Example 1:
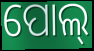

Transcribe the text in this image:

ପୋଲ୍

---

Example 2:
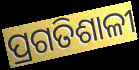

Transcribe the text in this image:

ପ୍ରଗତିଶାଳୀ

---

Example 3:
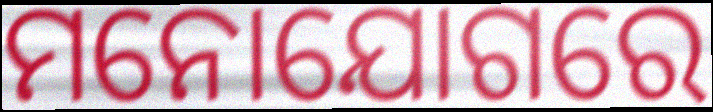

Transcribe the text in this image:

ମନୋଯୋଗରେ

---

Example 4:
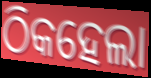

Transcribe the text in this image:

ଠିକହେଲା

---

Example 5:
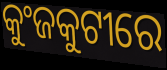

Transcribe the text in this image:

କୁଂଜକୁଟୀରେ